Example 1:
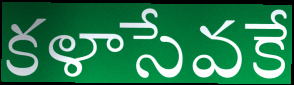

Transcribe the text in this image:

కళాసేవకే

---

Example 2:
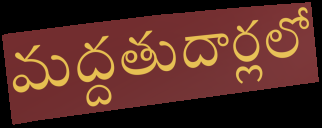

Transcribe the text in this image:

మద్దతుదార్లలో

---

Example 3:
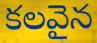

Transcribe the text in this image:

కలవైన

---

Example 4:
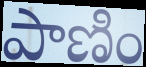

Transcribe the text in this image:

పాణిం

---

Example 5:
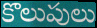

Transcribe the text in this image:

కొలుపులు